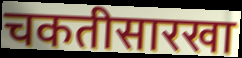
चकतीसारखा